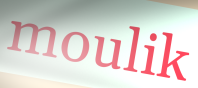
moulik